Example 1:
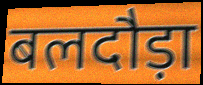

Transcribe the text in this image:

बलदौड़ा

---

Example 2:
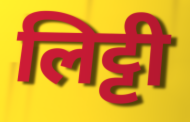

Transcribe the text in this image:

लिट्टी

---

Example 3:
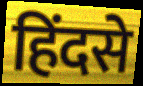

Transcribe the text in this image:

हिंदसे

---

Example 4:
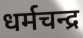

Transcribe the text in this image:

धर्मचन्द्र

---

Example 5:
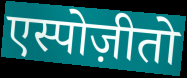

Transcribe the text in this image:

एस्पोज़ीतो